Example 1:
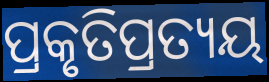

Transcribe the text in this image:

ପ୍ରକୃତିପ୍ରତ୍ୟୟ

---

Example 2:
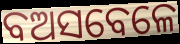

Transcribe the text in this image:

ବଅସବେଳେ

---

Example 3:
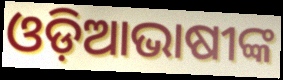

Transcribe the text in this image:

ଓଡ଼ିଆଭାଷୀଙ୍କ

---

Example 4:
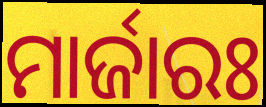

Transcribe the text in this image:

ମାର୍ଜାରଃ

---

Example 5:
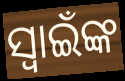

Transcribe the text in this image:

ସ୍ଵାଇଁଙ୍କ